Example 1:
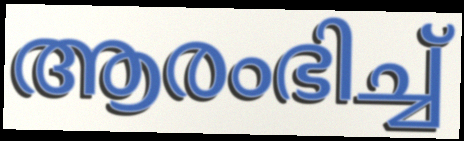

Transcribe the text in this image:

ആരംഭിച്ച്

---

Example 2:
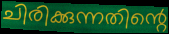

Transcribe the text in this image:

ചിരിക്കുന്നതിന്റെ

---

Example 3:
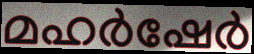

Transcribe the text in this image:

മഹർഷേർ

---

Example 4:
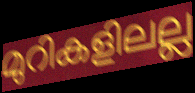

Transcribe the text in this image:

മുറികളിലല്ല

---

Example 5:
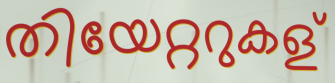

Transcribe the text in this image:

തിയേറ്ററുകള്